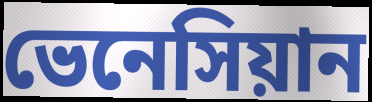
ভেনেসিয়ান